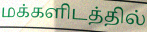
மக்களிடத்தில்